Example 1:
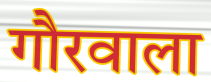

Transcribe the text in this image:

गौरवाला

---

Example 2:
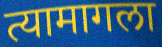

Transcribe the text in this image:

त्यामागला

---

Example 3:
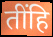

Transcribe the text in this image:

तींहि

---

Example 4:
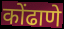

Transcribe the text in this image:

कोंढाणे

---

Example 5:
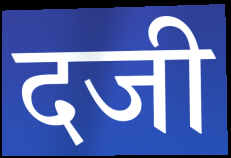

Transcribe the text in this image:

दजी